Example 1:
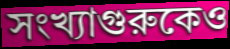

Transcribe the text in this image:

সংখ্যাগুরুকেও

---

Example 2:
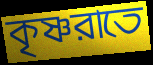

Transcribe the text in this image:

কৃষ্ণরাতে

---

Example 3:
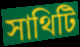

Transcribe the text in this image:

সাথিটি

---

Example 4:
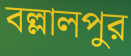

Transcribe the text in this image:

বল্লালপুর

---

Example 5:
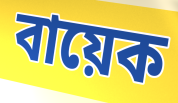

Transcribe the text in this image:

বায়েক